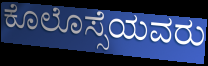
ಕೊಲೊಸ್ಸೆಯವರು